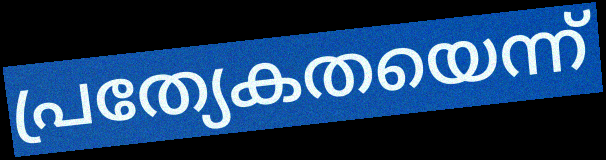
പ്രത്യേകതയെന്ന്